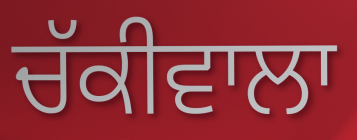
ਚੱਕੀਵਾਲਾ